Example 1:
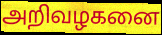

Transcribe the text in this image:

அறிவழகனை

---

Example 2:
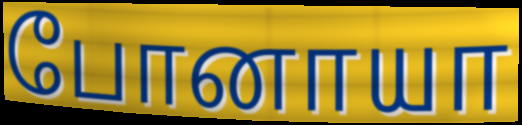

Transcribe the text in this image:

போனாயா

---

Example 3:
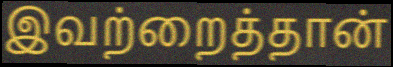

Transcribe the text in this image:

இவற்றைத்தான்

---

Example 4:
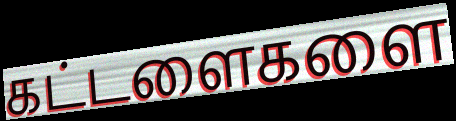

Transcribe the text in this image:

கட்டளைகளை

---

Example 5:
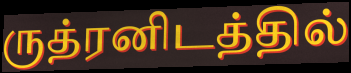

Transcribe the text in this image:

ருத்ரனிடத்தில்